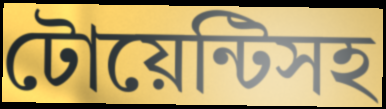
টোয়েন্টিসহ